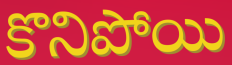
కొనిపోయి